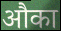
औका